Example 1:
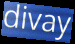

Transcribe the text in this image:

divay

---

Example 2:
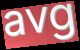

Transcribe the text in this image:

avg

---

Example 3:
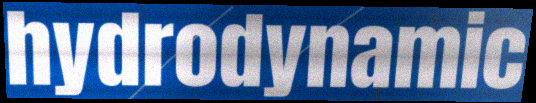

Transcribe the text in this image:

hydrodynamic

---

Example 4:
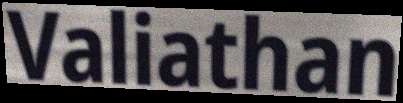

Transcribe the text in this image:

Valiathan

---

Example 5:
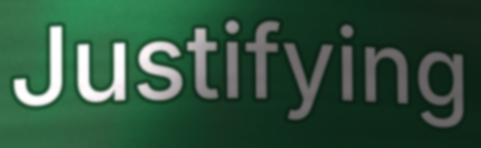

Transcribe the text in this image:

Justifying